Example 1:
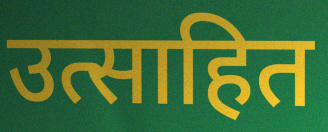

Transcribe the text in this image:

उत्साहित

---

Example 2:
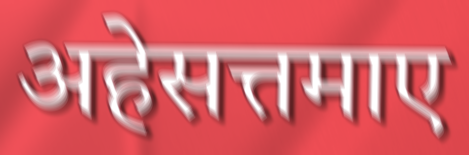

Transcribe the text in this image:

अहेसत्तमाए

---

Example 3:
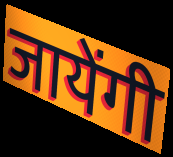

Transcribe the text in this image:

जायेंगी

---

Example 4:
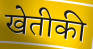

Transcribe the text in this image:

खेतीकी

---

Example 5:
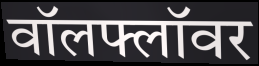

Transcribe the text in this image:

वॉलफ्लॉवर